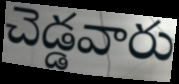
చెడ్డవారు